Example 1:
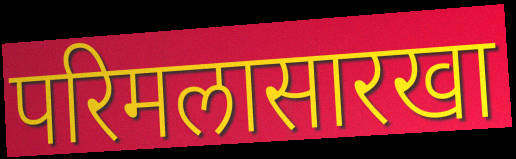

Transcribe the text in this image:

परिमलासारखा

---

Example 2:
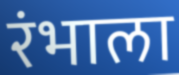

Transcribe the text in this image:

रंभाला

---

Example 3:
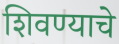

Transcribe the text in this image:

शिवण्याचे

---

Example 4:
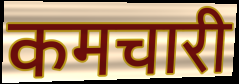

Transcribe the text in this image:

कमचारी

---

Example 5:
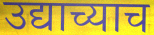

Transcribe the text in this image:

उद्याच्याच